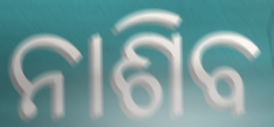
ନାଶିବ